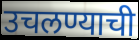
उचलण्याची